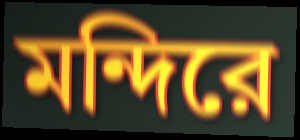
মন্দিরে